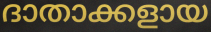
ദാതാക്കളായ